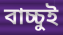
বাচ্চুই